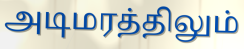
அடிமரத்திலும்